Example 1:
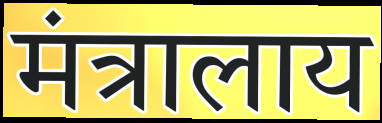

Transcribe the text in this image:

मंत्रालाय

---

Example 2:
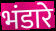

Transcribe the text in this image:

भंडारे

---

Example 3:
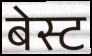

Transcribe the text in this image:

बेस्ट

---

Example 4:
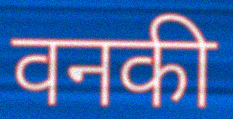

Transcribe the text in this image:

वनकी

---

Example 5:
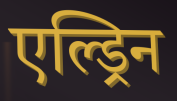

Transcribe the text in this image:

एल्ड्रिन